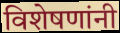
विशेषणांनी